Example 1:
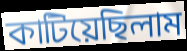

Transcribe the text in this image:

কাটিয়েছিলাম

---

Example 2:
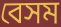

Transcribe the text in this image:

বেসম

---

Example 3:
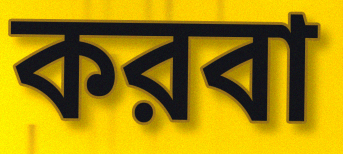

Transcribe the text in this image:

করবা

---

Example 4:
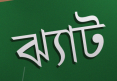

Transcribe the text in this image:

ঝ্যাট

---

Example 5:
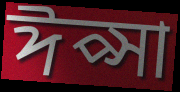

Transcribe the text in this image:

ঈপ্সা